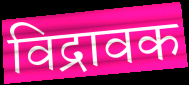
विद्रावक